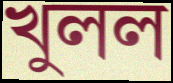
খুলল